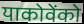
याकोवेंको